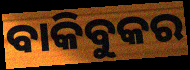
ବାକିବୁକର